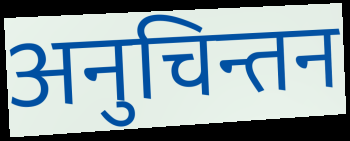
अनुचिन्तन